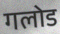
गलोड